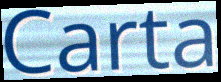
Carta